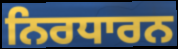
ਨਿਰਧਾਰਨ